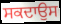
ਸਕਦਾਉਸ